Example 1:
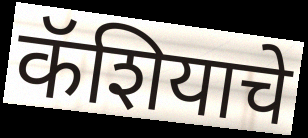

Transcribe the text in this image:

कॅशियाचे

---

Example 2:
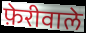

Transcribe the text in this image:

फ़ेरीवाले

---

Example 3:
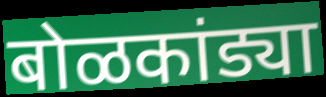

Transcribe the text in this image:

बोळकांड्या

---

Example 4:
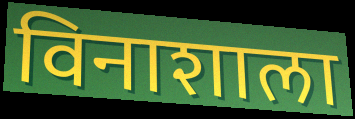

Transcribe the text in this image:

विनाशाला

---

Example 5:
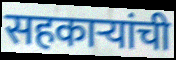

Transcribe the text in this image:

सहकाऱ्यांची